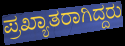
ಪ್ರಖ್ಯಾತರಾಗಿದ್ದರು